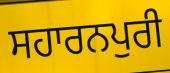
ਸਹਾਰਨਪੁਰੀ